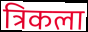
त्रिकला